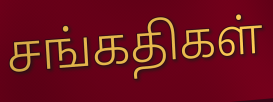
சங்கதிகள்